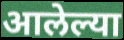
आलेल्या